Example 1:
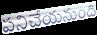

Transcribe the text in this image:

పనిచేయనుంది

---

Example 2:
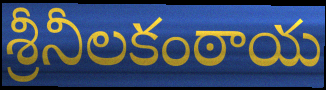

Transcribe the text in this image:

శ్రీనీలకంఠాయ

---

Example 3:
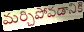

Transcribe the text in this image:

మర్చిపోవడానికి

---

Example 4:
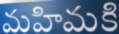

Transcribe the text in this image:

మహిమకి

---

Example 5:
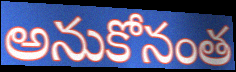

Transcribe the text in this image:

అనుకోనంత